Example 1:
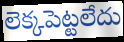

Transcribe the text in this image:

లెక్కపెట్టలేదు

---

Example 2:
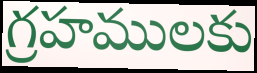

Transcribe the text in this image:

గ్రహములకు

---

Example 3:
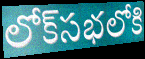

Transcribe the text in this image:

లోక్‌సభలోకి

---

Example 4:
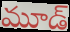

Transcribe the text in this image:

మూడ్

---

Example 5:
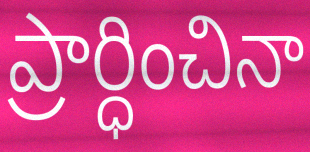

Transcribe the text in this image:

ప్రార్ధించినా